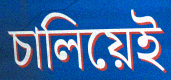
চালিয়েই